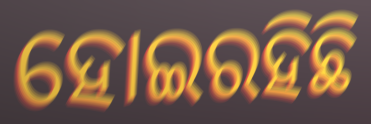
ହୋଇରହିଛି